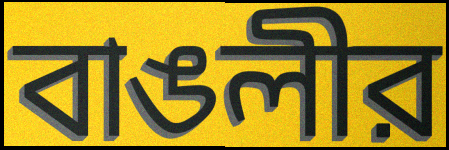
বাঙলীর